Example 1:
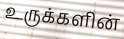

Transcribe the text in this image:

உருக்களின்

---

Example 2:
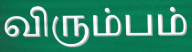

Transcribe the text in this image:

விரும்பம்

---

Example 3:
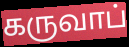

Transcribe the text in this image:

கருவாப்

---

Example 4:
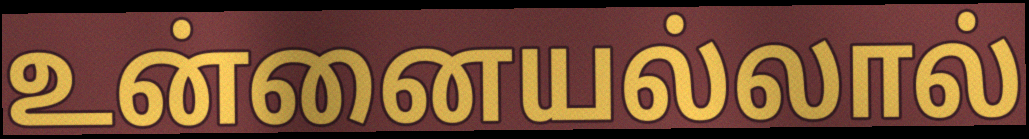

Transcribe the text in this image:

உன்னையல்லால்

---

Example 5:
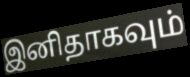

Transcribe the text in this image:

இனிதாகவும்